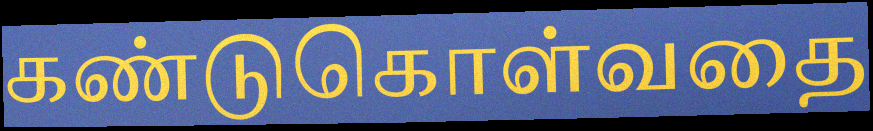
கண்டுகொள்வதை